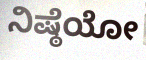
ನಿಷ್ಠೆಯೋ